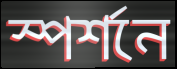
স্পর্শনে